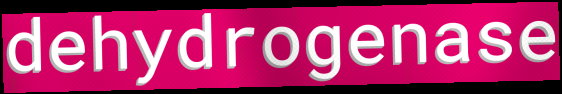
dehydrogenase